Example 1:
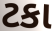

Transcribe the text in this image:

ટકા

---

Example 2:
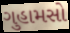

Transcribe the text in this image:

ગુહામસો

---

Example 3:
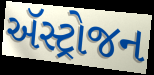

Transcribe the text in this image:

ઍસ્ટ્રોજન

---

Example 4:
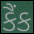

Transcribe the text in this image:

કૈંક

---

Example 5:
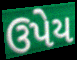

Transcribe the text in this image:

ઉપેય